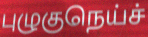
புழுகுநெய்ச்